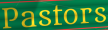
Pastors